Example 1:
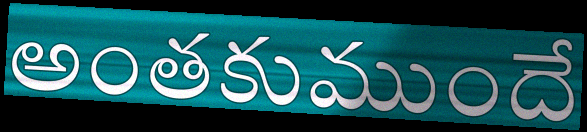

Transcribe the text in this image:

అంతకుముందే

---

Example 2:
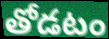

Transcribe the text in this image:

తోడటం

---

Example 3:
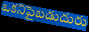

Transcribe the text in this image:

ఒకనిపైబడుదురు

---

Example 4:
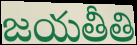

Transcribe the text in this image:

జయతీతి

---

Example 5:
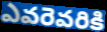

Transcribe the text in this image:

ఎవరెవరికి